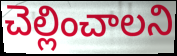
చెల్లించాలని